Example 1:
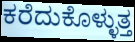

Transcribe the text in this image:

ಕರೆದುಕೊಳ್ಳುತ್ತ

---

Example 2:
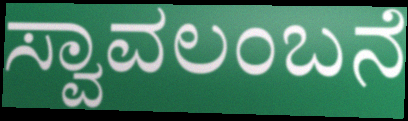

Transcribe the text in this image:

ಸ್ವಾವಲಂಬನೆ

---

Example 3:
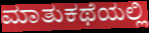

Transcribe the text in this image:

ಮಾತುಕಥೆಯಲ್ಲಿ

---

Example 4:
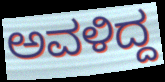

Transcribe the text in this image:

ಅವಳಿದ್ದ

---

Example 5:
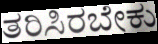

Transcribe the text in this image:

ತರಿಸಿರಬೇಕು